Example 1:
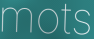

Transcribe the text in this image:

mots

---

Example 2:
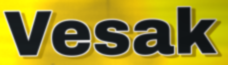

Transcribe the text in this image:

Vesak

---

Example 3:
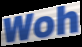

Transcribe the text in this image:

Woh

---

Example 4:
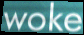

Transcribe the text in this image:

woke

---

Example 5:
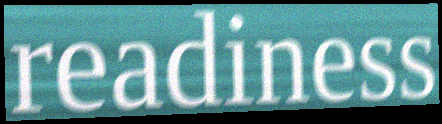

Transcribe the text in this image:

readiness